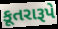
કૂતરારૂપે